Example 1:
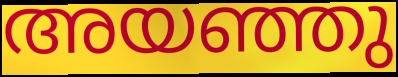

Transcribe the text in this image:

അയഞ്ഞു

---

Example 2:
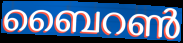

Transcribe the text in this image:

ബൈറൺ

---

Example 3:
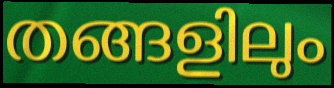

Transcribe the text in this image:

തങ്ങളിലും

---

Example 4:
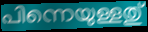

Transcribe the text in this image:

പിന്നെയുള്ളതു്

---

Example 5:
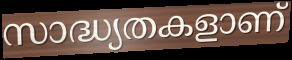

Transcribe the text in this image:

സാദ്ധ്യതകളാണ്